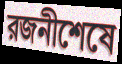
রজনীশেষে